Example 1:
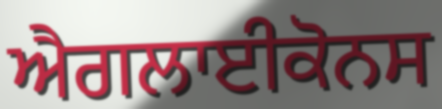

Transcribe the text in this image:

ਐਗਲਾਈਕੋਨਸ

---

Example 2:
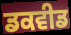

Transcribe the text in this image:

ਡਕਵੀਡ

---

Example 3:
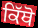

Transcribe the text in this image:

ਕਿੱਥੋ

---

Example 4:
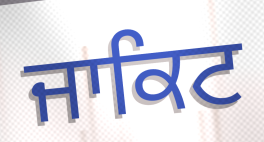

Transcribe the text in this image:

ਜਾਕਿਟ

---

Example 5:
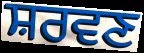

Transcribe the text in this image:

ਸ਼ਰਵਣ